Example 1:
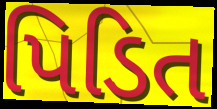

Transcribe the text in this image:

પિડિત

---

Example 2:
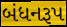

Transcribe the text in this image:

બંધનરૂપ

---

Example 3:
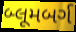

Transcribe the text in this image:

બ્લૂમબર્ગ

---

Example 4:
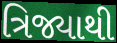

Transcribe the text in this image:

ત્રિજ્યાથી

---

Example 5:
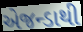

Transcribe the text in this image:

એજન્ડાથી